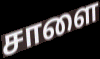
சாளை